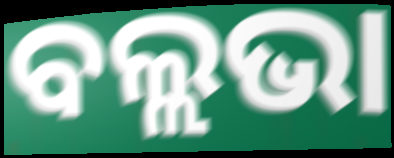
ବଲ୍ଲଭା